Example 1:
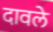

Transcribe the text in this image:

दावले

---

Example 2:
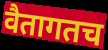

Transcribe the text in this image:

वैतागतच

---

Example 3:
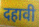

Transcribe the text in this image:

दहावी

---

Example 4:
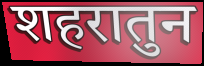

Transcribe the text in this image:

शहरातुन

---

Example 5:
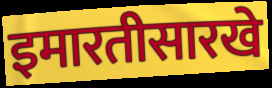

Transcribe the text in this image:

इमारतीसारखे